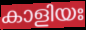
കാളിയഃ